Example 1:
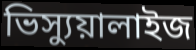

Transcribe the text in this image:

ভিস্যুয়ালাইজ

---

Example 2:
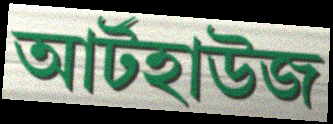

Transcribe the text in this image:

আর্টহাউজ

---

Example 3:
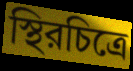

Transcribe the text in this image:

স্থিরচিত্রে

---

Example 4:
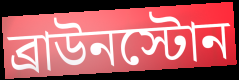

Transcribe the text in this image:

ব্রাউনস্টোন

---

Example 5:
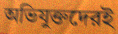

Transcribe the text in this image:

অভিযুক্তদেরই